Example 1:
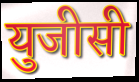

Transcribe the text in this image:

युजीसी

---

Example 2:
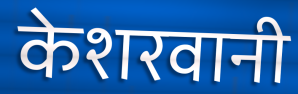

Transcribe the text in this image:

केशरवानी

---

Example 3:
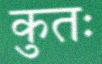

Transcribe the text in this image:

कुतः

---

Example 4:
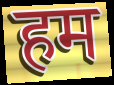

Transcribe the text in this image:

हम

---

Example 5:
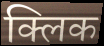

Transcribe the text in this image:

क्लिक